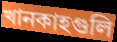
খানকাহগুলি